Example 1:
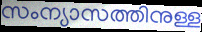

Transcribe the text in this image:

സംന്യാസത്തിനുള്ള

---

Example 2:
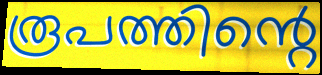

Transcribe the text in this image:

രൂപത്തിന്റെ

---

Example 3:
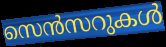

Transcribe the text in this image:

സെൻസറുകൾ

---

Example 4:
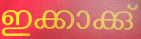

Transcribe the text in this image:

ഇക്കാക്കു്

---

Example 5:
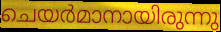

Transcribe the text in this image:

ചെയർമാനായിരുന്നു